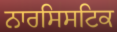
ਨਾਰਸਿਸਟਿਕ